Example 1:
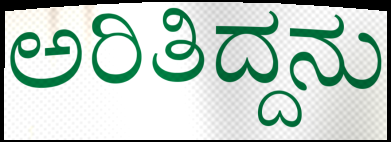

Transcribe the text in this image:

ಅರಿತಿದ್ದನು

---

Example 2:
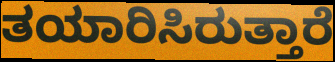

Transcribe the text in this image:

ತಯಾರಿಸಿರುತ್ತಾರೆ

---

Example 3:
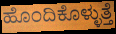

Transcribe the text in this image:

ಹೊಂದಿಕೊಳ್ಳುತ್ತೆ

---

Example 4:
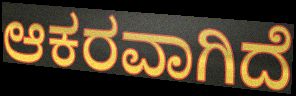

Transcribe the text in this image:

ಆಕರವಾಗಿದೆ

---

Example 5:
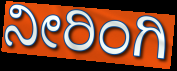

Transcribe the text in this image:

ನೀರಿಂಗಿ